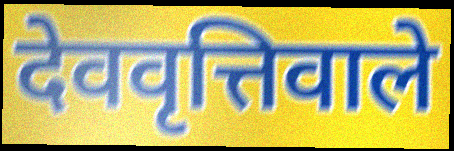
देववृत्तिवाले